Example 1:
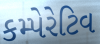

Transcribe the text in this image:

કમ્પેરેટિવ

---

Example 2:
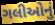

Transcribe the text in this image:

ગલીઓનું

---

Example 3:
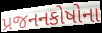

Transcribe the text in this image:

પ્રજનનકોષોના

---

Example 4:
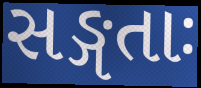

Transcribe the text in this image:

સઙ્ગતાઃ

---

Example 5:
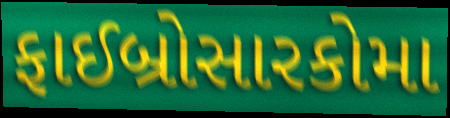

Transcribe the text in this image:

ફાઈબ્રોસારકોમા